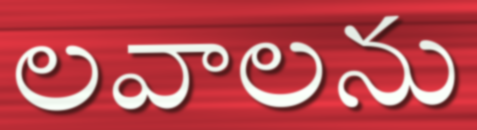
లవాలను